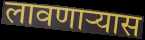
लावणाऱ्यास